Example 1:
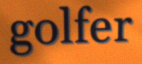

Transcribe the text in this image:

golfer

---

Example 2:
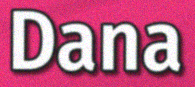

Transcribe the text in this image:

Dana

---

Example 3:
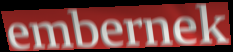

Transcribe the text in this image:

embernek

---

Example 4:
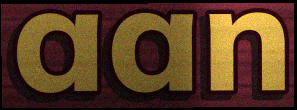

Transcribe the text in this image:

aan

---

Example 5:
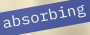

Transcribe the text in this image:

absorbing